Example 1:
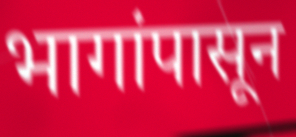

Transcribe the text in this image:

भागांपासून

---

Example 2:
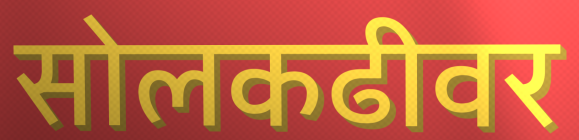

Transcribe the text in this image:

सोलकढीवर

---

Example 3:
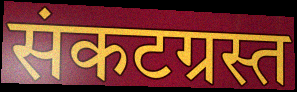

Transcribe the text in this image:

संकटग्रस्त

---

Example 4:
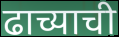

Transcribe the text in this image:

ढाच्याची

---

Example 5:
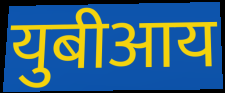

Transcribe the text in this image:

युबीआय